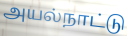
அயல்நாட்டு